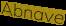
Abnave